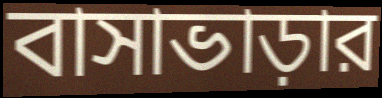
বাসাভাড়ার